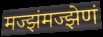
मज्झंमज्झेणं